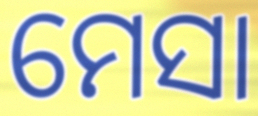
ମେସା